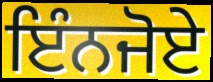
ਇੰਨਜੋਏ